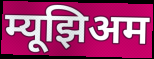
म्यूझिअम